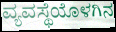
ವ್ಯವಸ್ಥೆಯೊಳಗಿನ